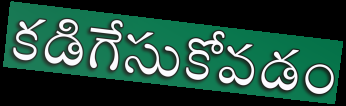
కడిగేసుకోవడం